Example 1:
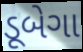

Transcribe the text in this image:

ડૂબેગા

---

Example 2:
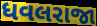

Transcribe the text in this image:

ધવલરાજા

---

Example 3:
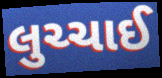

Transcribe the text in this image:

લુચ્ચાઈ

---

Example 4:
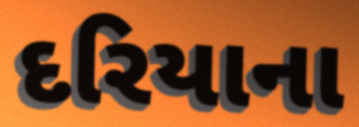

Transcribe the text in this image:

દરિયાના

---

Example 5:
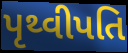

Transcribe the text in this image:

પૃથ્વીપતિ